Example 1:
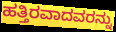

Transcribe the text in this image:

ಹತ್ತಿರವಾದವರನ್ನು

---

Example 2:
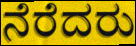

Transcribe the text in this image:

ನೆರೆದರು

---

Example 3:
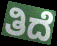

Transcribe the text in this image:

ತಿದೆ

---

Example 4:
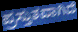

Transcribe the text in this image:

ಪ್ರಸ್ತುತವಾಗಿದೆ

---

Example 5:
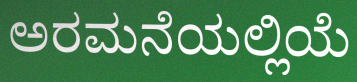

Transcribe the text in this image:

ಅರಮನೆಯಲ್ಲಿಯೆ